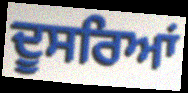
ਦੂਸਰਿਆਂ